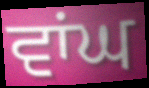
ਵਾਂਘ